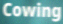
Cowing